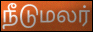
நீடுமலர்